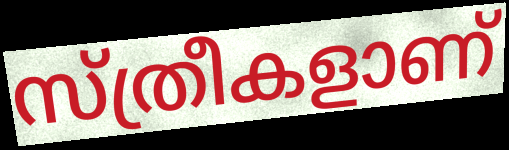
സ്ത്രീകളാണ്